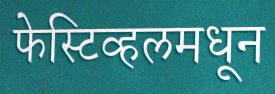
फेस्टिव्हलमधून